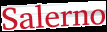
Salerno